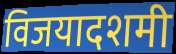
विजयादशमी